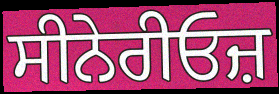
ਸੀਨੇਰੀਓਜ਼